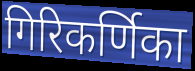
गिरिकर्णिका